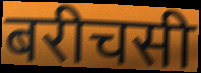
बरीचसी